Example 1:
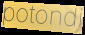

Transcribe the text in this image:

potondi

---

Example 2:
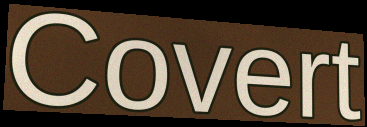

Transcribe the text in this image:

Covert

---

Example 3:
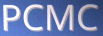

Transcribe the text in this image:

PCMC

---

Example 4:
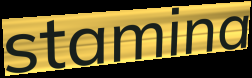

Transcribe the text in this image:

stamina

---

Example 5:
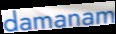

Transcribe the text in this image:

damanam